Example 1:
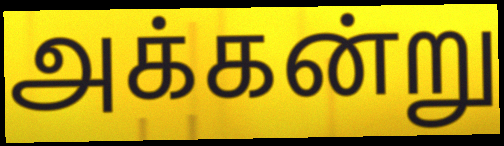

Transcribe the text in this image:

அக்கன்று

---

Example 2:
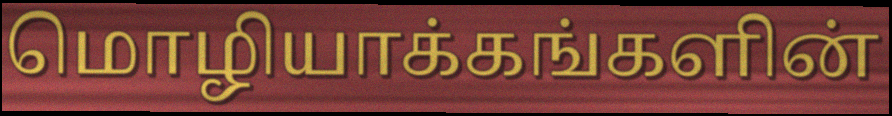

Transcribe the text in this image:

மொழியாக்கங்களின்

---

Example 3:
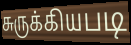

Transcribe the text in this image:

சுருக்கியபடி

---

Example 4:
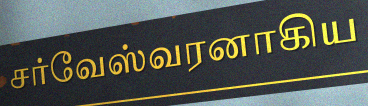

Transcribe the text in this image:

சர்வேஸ்வரனாகிய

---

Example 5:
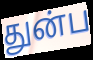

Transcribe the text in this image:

துன்ப